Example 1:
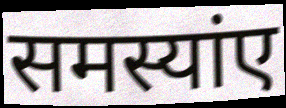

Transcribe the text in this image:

समस्यांए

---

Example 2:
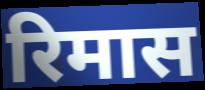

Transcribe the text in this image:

रिमास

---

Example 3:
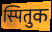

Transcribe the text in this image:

स्पितुक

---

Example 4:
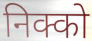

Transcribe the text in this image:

निक्को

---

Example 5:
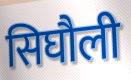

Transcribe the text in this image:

सिघौली